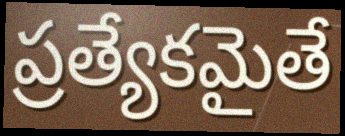
ప్రత్యేకమైతే